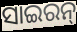
ସାଇରନ୍